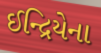
ઈન્દ્રિયેના